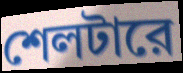
শেলটারে